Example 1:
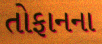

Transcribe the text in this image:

તોફાનના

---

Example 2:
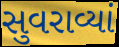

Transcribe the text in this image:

સુવરાવ્યાં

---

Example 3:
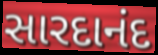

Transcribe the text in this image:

સારદાનંદ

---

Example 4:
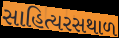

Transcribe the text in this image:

સાહિત્યરસથાળ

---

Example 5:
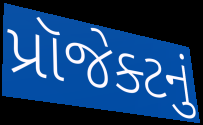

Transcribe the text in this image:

પ્રૉજેક્ટનું